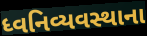
ધ્વનિવ્યવસ્થાના